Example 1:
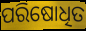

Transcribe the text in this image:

ପରିଷୋଧିତ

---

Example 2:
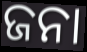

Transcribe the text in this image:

ଜନା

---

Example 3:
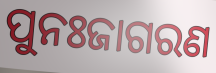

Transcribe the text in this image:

ପୁନଃଜାଗରଣ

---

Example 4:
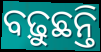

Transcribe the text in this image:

ବଢ଼ୁଛନ୍ତି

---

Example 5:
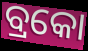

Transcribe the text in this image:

ବ୍ରକୋ